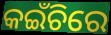
କଇଁଚିରେ